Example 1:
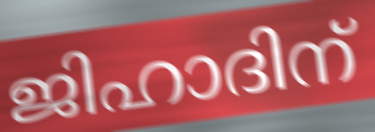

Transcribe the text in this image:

ജിഹാദിന്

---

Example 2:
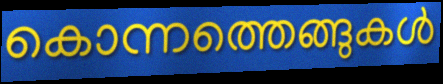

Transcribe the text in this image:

കൊന്നത്തെങ്ങുകൾ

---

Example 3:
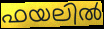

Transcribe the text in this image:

ഫയലിൽ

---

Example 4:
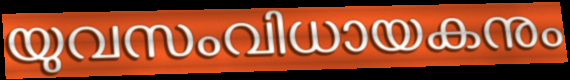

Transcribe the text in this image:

യുവസംവിധായകനും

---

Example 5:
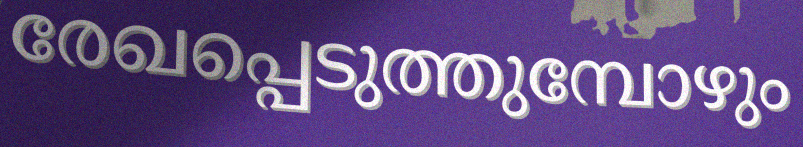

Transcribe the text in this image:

രേഖപ്പെടുത്തുമ്പോഴും